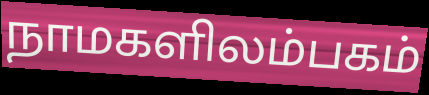
நாமகளிலம்பகம்